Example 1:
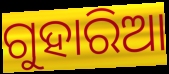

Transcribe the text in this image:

ଗୁହାରିଆ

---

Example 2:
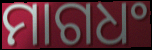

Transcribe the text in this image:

ମାଗଧଂ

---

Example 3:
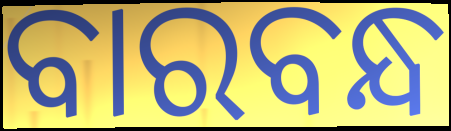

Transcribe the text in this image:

ବାରବନ୍ଧ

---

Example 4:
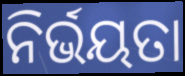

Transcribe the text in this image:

ନିର୍ଭୟତା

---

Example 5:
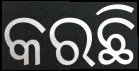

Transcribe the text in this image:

କରଛି